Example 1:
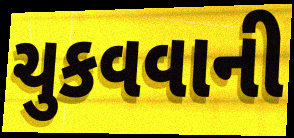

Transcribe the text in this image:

ચુકવવાની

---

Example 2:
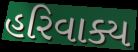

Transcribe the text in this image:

હરિવાક્ય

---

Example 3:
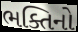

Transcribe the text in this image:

ભક્તિનો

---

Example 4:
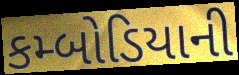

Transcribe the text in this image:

કમ્બોડિયાની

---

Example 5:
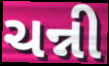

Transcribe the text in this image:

ચન્ની